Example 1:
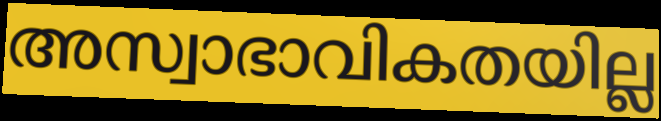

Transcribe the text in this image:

അസ്വാഭാവികതയില്ല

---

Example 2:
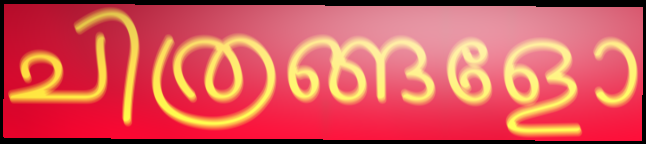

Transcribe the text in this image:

ചിത്രങ്ങളോ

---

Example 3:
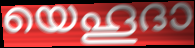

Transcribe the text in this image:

യെഹൂദാ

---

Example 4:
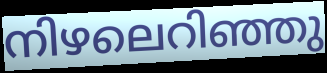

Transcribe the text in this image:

നിഴലെറിഞ്ഞു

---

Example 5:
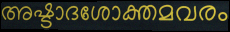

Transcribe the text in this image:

അഷ്ടാദശോക്തമവരം